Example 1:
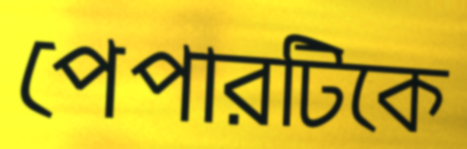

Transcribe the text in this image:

পেপারটিকে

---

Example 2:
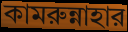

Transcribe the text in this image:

কামরুন্নাহার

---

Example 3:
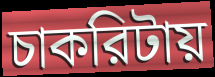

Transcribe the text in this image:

চাকরিটায়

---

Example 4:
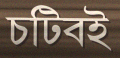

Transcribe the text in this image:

চটিবই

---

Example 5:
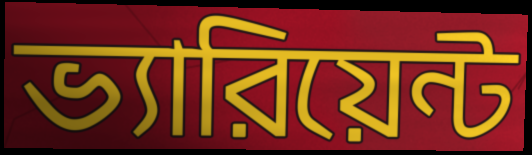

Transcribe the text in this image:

ভ্যারিয়েন্ট